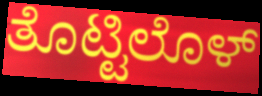
ತೊಟ್ಟಿಲೊಳ್